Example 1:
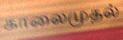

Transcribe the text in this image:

காலைமுதல்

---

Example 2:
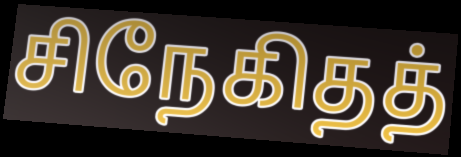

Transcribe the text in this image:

சிநேகிதத்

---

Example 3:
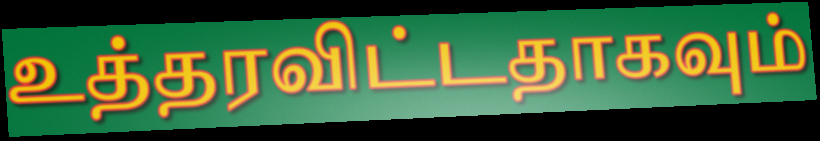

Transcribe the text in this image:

உத்தரவிட்டதாகவும்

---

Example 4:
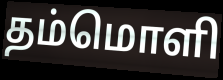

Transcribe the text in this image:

தம்மொளி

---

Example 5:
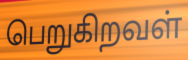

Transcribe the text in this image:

பெறுகிறவள்